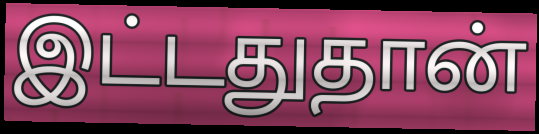
இட்டதுதான்